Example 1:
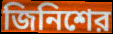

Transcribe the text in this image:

জিনিশের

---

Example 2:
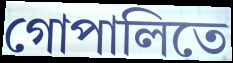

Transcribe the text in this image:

গোপালিতে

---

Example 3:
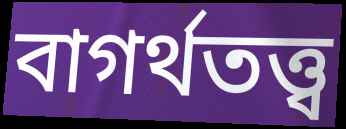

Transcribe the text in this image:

বাগর্থতত্ত্ব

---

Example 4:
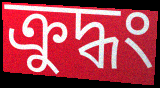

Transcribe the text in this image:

ক্রুদ্ধং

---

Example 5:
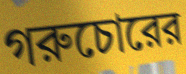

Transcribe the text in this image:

গরুচোরের